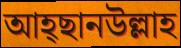
আহ্ছানউল্লাহ